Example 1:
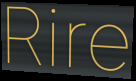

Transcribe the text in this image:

Rire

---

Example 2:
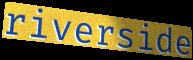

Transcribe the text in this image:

riverside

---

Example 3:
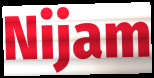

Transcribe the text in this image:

Nijam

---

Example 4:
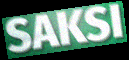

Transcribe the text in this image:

SAKSI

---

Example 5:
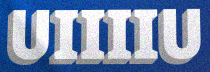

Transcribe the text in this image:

UIIIIU